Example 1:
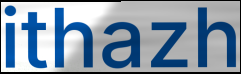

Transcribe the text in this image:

ithazh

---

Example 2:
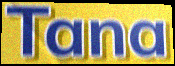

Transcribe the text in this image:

Tana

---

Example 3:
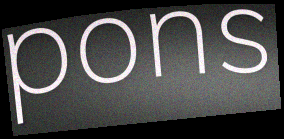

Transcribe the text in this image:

pons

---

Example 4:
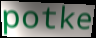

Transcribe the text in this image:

potke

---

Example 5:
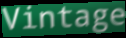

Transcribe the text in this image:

Vintage